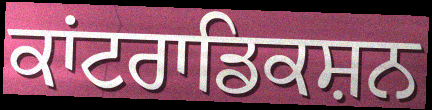
ਕਾਂਟਰਾਡਿਕਸ਼ਨ